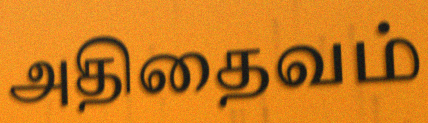
அதிதைவம்